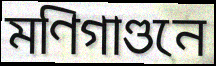
মণিগাণ্ডনে